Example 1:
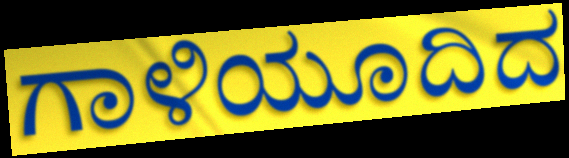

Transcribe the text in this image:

ಗಾಳಿಯೂದಿದ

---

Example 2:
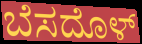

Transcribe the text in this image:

ಬೆಸದೊಳ್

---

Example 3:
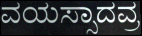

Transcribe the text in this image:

ವಯಸ್ಸಾದವ್ರ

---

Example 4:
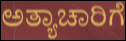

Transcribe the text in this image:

ಅತ್ಯಾಚಾರಿಗೆ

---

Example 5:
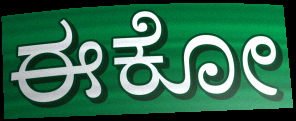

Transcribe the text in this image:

ಈಕೋ